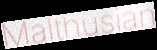
Malthusian